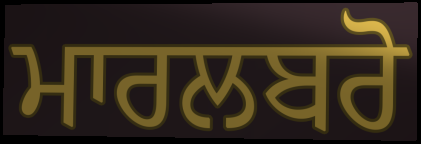
ਮਾਰਲਬਰੋ